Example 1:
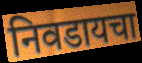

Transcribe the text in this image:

निवडायचा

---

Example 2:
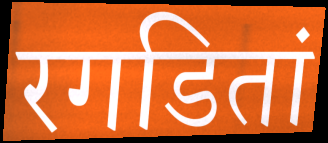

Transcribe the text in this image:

रगडितां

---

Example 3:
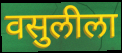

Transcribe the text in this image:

वसुलीला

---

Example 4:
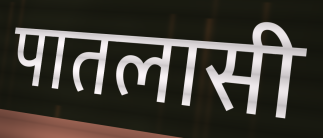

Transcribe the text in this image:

पातलासी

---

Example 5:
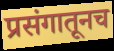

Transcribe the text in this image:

प्रसंगातूनच